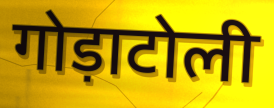
गोड़ाटोली